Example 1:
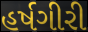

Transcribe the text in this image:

હર્ષગીરી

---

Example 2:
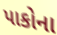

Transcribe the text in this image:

પાકોના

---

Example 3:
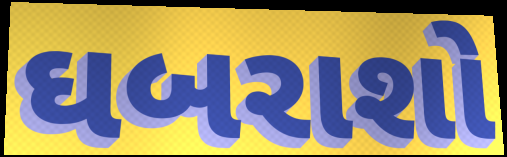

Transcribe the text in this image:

ઘબરાશો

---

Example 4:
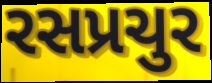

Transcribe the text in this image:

રસપ્રચુર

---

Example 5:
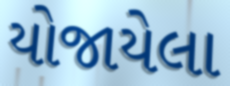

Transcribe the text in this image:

યોજાયેલા